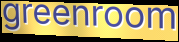
greenroom